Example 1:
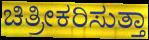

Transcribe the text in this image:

ಚಿತ್ರೀಕರಿಸುತ್ತಾ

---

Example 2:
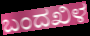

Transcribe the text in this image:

ಬಂದಖಿಳ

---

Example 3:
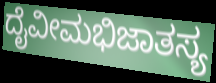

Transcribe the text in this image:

ದೈವೀಮಭಿಜಾತಸ್ಯ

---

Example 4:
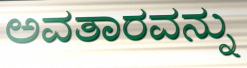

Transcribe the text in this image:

ಅವತಾರವನ್ನು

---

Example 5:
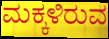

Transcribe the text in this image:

ಮಕ್ಕಳಿರುವ